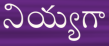
నియ్యగా